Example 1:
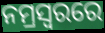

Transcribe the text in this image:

ନମ୍ରସ୍ୱରରେ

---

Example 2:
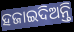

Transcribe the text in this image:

ହଜାଇଦିଅନ୍ତି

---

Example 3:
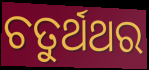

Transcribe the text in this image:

ଚତୁର୍ଥଥର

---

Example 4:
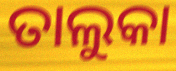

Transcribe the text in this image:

ତାଲୁକା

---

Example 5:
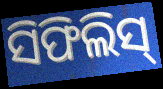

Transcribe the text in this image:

ସିଫିଲିସ୍